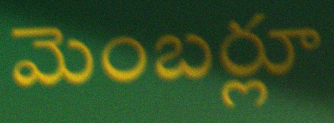
మెంబర్లూ